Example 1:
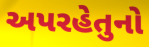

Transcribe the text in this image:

અપરહેતુનો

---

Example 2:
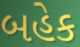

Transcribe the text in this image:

બહેક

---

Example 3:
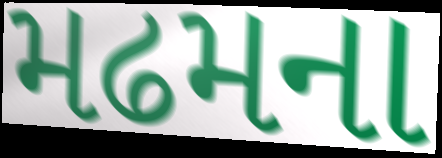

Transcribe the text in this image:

મઢમના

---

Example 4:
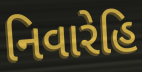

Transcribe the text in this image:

નિવારેહિ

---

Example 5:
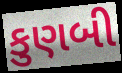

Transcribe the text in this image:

કુણબી